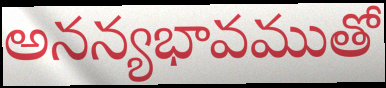
అనన్యభావముతో